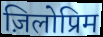
ज़िलोप्रिम